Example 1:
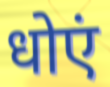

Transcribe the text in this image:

धोएं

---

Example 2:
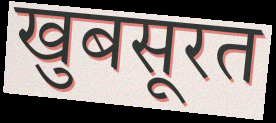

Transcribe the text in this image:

खुबसूरत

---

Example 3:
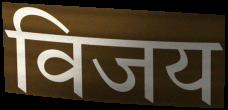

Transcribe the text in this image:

विजय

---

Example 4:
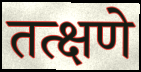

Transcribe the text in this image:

तत्क्षणे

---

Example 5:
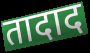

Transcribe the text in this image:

तादाद